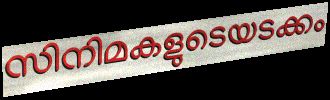
സിനിമകളുടെയടക്കം